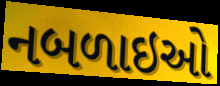
નબળાઇઓ